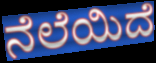
ನೆಲೆಯಿದೆ